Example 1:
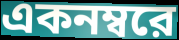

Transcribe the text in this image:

একনম্বরে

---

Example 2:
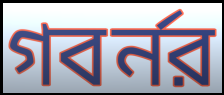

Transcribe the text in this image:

গবর্নর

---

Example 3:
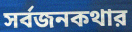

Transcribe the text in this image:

সর্বজনকথার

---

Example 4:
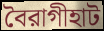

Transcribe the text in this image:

বৈরাগীহাট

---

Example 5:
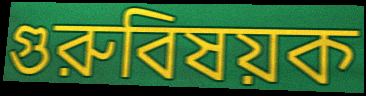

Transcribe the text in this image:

গুরুবিষয়ক